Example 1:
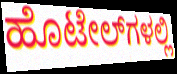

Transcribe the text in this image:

ಹೊಟೇಲ್‌ಗಳಲ್ಲಿ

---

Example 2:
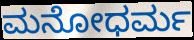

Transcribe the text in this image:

ಮನೋಧರ್ಮ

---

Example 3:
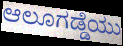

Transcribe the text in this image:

ಆಲೂಗಡ್ಡೆಯು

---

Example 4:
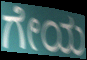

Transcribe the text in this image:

ಗೇಯ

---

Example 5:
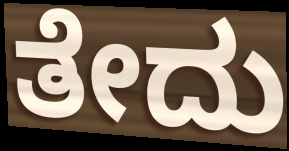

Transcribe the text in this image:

ತೇದು